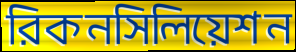
রিকনসিলিয়েশন